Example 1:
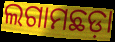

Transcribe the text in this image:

ଲଗାମଛଡ଼ା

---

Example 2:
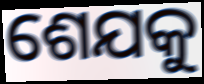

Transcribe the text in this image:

ଶେଯକୁ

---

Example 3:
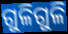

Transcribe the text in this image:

ଗୁଳିଗୁଳି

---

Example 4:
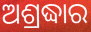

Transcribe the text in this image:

ଅଶ୍ରଦ୍ଧାର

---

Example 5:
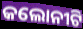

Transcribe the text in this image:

କଲୋନୀଟି